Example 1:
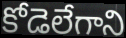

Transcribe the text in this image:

కోడెలేగాని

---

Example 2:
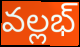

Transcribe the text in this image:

వల్లభ్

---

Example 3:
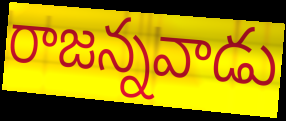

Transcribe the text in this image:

రాజన్నవాడు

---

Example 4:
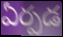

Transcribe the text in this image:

ఏర్పడ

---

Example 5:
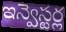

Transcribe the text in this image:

ఇన్వెస్టర్ల